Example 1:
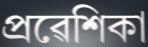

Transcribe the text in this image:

প্ৰৱেশিকা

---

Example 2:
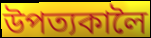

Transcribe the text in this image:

উপত্যকালৈ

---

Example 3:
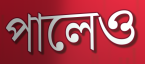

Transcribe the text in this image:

পালেও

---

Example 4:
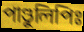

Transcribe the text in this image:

পাণ্ডুলিপিঃ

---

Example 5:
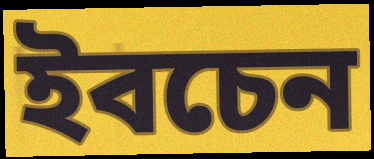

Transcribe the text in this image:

ইবচেন